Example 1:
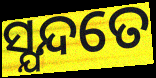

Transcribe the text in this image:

ସ୍ଯନ୍ଦତେ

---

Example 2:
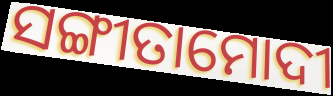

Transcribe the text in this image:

ସଙ୍ଗୀତାମୋଦୀ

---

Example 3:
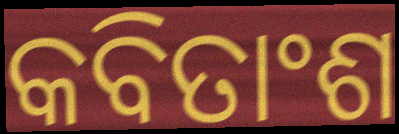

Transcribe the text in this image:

କବିତାଂଶ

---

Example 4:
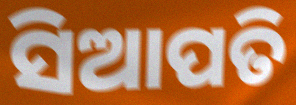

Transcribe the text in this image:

ସିଆପତି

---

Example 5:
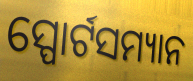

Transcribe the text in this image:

ସ୍ପୋର୍ଟସମ୍ୟାନ